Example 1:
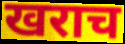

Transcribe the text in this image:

खराच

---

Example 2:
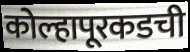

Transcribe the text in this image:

कोल्हापूरकडची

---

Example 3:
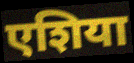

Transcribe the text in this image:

एशिया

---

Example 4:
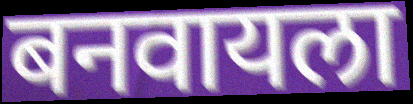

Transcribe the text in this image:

बनवायला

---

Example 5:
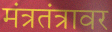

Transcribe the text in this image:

मंत्रतंत्रावर